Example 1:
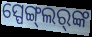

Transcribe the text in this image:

ସ୍ପେଙ୍ଗ୍‌ଲର୍‌ଙ୍କ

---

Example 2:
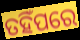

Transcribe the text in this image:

ତହିଁପରେ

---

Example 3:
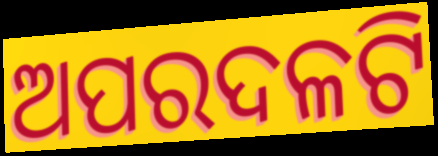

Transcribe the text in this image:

ଅପରଦଳଟି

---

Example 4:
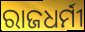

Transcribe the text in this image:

ରାଜଧର୍ମୀ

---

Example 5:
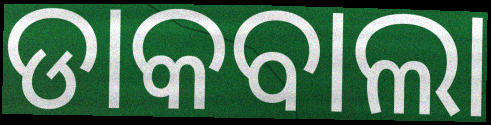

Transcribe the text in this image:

ଡାକବାଲା